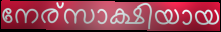
നേര്സാക്ഷിയായ